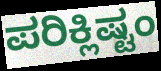
ಪರಿಕ್ಲಿಷ್ಟಂ